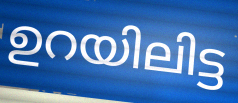
ഉറയിലിട്ട